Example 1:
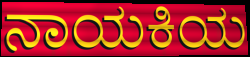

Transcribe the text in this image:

ನಾಯಕಿಯ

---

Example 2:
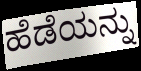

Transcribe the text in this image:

ಹೆಡೆಯನ್ನು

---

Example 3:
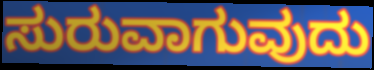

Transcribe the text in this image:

ಸುರುವಾಗುವುದು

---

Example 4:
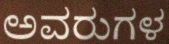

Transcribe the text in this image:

ಅವರುಗಳ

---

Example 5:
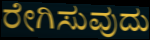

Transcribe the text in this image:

ರೇಗಿಸುವುದು